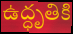
ఉద్ధృతికి